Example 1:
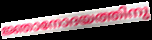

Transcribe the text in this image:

ജ്ഞാനോദയത്തിനു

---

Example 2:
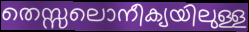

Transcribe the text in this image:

തെസ്സലൊനീക്യയിലുള്ള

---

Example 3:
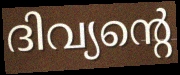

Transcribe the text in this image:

ദിവ്യന്റെ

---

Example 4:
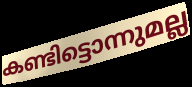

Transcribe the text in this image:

കണ്ടിട്ടൊന്നുമല്ല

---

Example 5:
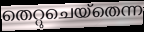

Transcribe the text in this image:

തെറ്റുചെയ്‌തെന്ന